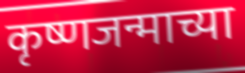
कृष्णजन्माच्या